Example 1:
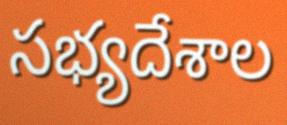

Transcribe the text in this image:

సభ్యదేశాల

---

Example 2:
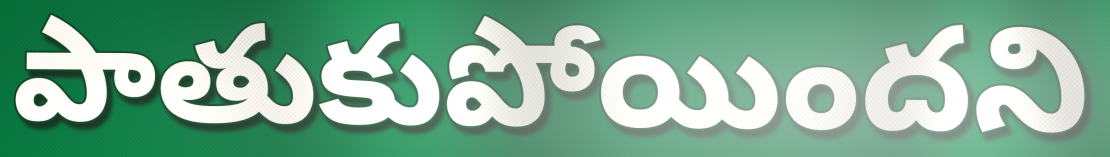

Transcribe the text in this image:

పాతుకుపోయిందని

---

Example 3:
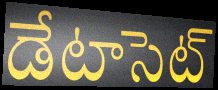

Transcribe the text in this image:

డేటాసెట్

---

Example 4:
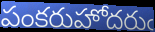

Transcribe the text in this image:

పంకరుహోదరుఁ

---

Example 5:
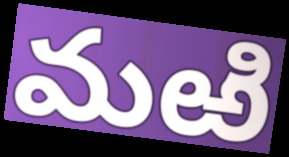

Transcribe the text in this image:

మఱి